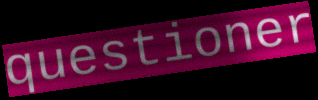
questioner